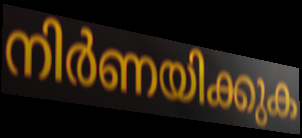
നിർണയിക്കുക